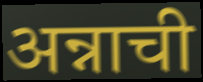
अन्नाची